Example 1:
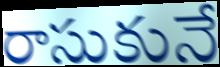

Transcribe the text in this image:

రాసుకునే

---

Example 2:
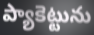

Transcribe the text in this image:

ప్యాకెట్టును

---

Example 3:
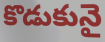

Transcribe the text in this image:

కొడుకునై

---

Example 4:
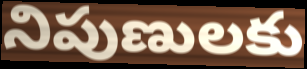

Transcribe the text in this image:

నిపుణులకు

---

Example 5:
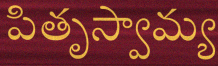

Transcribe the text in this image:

పితృస్వామ్య